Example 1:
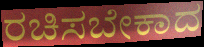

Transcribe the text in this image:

ರಚಿಸಬೇಕಾದ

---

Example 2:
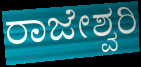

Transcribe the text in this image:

ರಾಜೇಶ್ವರಿ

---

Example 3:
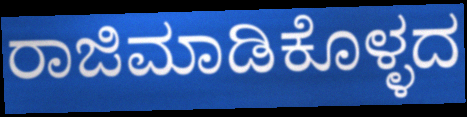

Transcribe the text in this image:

ರಾಜಿಮಾಡಿಕೊಳ್ಳದ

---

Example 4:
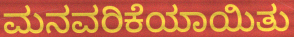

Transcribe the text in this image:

ಮನವರಿಕೆಯಾಯಿತು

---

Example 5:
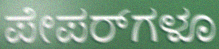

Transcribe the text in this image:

ಪೇಪರ್‌ಗಳೂ